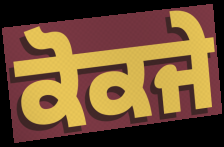
ਕੋਕਜੇ